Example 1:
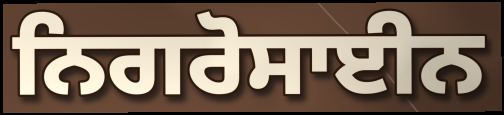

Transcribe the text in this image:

ਨਿਗਰੋਸਾਈਨ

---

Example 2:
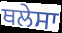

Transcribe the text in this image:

ਥਲੇਸਾ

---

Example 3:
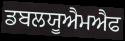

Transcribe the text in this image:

ਡਬਲਯੂਐਮਐਫ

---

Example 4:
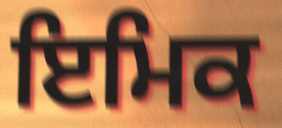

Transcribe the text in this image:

ਇਮਿਕ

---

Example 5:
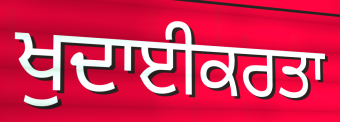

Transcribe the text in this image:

ਖੁਦਾਈਕਰਤਾ